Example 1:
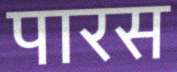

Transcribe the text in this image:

पारस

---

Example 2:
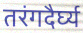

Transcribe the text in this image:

तरंगदैर्घ्य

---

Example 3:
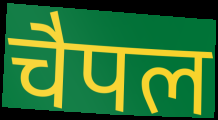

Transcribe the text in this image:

चैपल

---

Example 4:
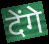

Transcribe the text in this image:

देंगे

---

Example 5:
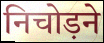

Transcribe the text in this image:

निचोड़ने